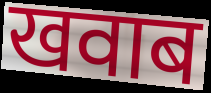
खवाब